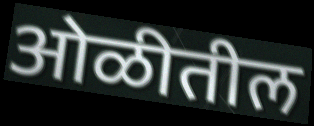
ओळीतील